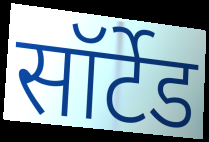
सॉर्टेड